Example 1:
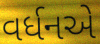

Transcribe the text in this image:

વર્ધનએ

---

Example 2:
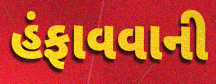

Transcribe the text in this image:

હંફાવવાની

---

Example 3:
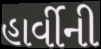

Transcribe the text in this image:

હાર્વીની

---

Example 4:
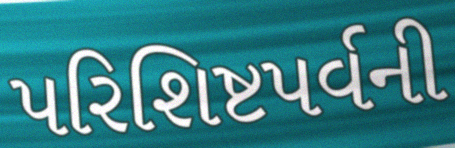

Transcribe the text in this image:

પરિશિષ્ટપર્વની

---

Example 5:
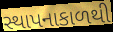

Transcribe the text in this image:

સ્થાપનાકાળથી